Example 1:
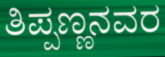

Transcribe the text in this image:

ತಿಪ್ಪಣ್ಣನವರ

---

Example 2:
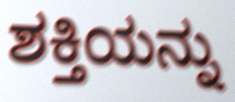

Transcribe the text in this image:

ಶಕ್ತಿಯನ್ನು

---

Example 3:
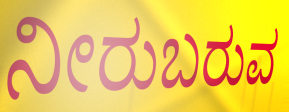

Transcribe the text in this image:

ನೀರುಬರುವ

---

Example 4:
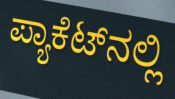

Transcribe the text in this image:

ಪ್ಯಾಕೆಟ್‍ನಲ್ಲಿ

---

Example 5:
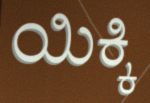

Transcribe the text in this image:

ಯಿಕ್ಕಿ